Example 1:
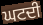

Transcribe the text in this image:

ਘਟਦੀ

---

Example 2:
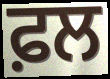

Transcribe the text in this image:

ਫ਼ਲ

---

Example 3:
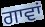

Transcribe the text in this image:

ਗਾਵਾਂ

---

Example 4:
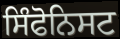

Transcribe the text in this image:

ਸਿੰਫੋਨਿਸਟ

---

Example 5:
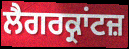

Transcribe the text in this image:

ਲੈਗਰਕ੍ਰਾਂਟਜ਼